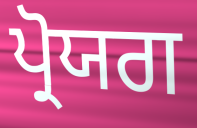
ਪ੍ਰੋਯਗ